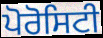
ਪੋਰੋਸਿਟੀ